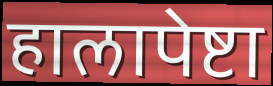
हालापेष्टा